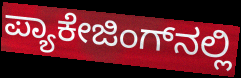
ಪ್ಯಾಕೇಜಿಂಗ್‌ನಲ್ಲಿ